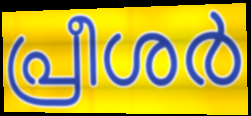
പ്രീശർ